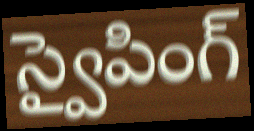
స్వైపింగ్